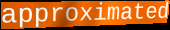
approximated